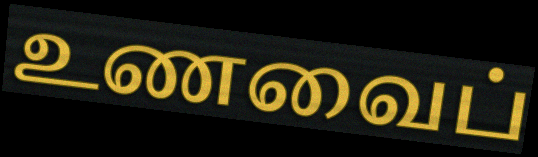
உணவைப்